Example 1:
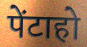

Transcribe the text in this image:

पेंटाहो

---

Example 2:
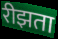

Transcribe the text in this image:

रीझता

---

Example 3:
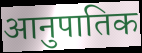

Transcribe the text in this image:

आनुपातिक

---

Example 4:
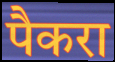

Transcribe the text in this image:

पैकरा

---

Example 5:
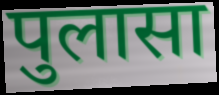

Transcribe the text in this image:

पुलासा